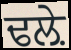
ਢਲ਼ੇ